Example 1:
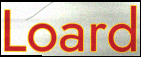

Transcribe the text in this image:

Loard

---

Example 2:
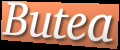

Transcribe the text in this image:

Butea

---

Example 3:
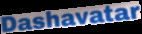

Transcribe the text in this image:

Dashavatar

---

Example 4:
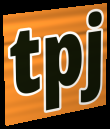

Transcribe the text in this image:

tpj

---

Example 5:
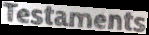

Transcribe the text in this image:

Testaments